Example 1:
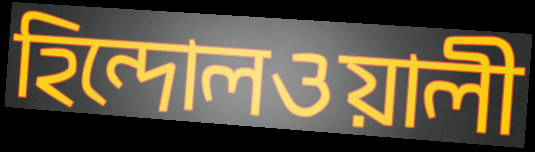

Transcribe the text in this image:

হিন্দোলওয়ালী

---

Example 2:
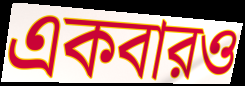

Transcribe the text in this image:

একবারও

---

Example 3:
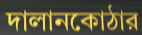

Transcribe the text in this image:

দালানকোঠার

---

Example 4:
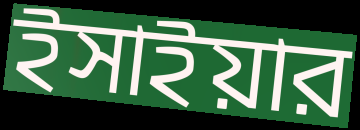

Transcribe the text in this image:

ইসাইয়ার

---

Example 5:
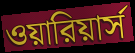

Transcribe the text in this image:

ওয়ারিয়ার্স